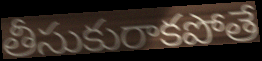
తీసుకురాకపోతే